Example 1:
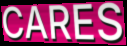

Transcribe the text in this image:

CARES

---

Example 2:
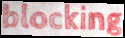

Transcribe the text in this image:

blocking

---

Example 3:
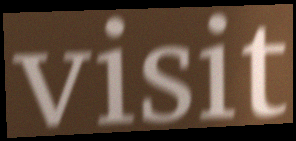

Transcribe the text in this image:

visit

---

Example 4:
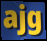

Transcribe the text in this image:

ajg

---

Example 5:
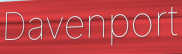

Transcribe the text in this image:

Davenport